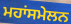
ਮਹਾਂਸਮੇਲਨ